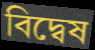
বিদ্বেষ